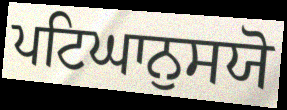
ਪਟਿਘਾਨੁਸਯੋ